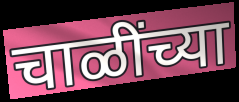
चाळींच्या